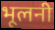
भूलनी